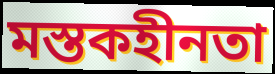
মস্তকহীনতা